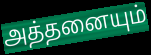
அத்தனையும்